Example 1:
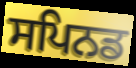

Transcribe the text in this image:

ਸਪਿਨਡ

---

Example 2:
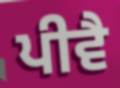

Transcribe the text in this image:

ਪੀਵੈ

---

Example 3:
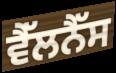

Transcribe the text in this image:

ਵੈੱਲਨੈੱਸ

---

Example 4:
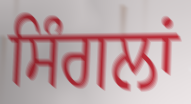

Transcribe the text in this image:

ਸਿੰਗਲਾਂ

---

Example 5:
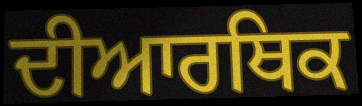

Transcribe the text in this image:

ਦੀਆਰਥਿਕ